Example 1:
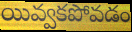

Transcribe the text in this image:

యివ్వకపోవడం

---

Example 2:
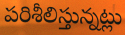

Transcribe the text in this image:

పరిశీలిస్తున్నట్లు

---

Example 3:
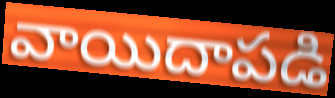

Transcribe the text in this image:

వాయిదాపడి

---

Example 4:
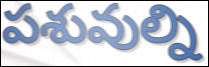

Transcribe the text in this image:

పశువుల్ని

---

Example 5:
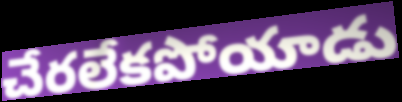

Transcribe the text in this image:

చేరలేకపోయాడు